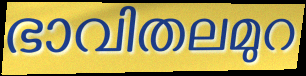
ഭാവിതലമുറ